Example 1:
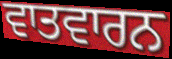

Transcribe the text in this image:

ਵਾਤਵਾਰਨ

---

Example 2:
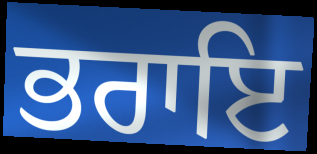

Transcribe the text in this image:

ਭਰਾਇ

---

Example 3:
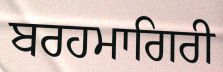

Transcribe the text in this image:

ਬਰਹਮਾਗਿਰੀ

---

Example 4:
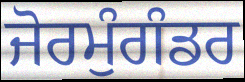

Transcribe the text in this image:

ਜੋਰਮੁੰਗੰਡਰ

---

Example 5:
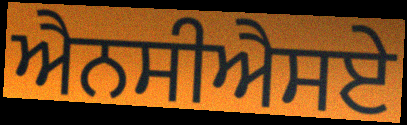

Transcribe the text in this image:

ਐਨਸੀਐਸਏ